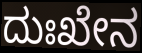
ದುಃಖೇನ